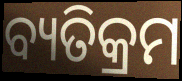
ବ୍ୟତିକ୍ରମ